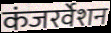
कंजरर्वेशन